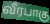
வீரபாகு